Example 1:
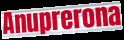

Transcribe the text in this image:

Anuprerona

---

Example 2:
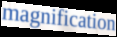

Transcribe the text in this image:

magnification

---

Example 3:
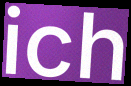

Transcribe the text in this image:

ich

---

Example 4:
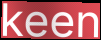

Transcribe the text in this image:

keen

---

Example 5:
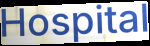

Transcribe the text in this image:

Hospital